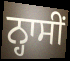
ਨ੍ਹਾਸੀਂ